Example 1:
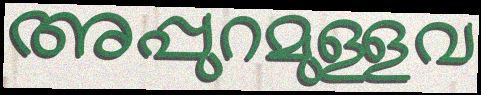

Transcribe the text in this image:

അപ്പുറമുള്ളവ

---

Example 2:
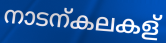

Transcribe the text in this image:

നാടന്കലകള്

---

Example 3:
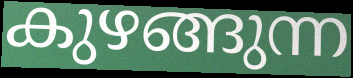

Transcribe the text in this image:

കുഴങ്ങുന്ന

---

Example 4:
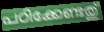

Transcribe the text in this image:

പഠിക്കേണ്ടതു്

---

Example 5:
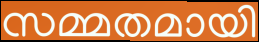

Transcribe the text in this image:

സമ്മതമായി